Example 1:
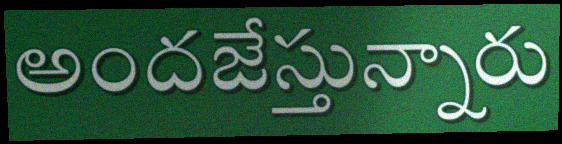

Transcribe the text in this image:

అందజేస్తున్నారు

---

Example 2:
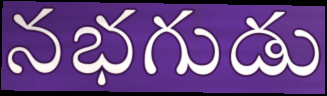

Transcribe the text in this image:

నభగుడు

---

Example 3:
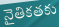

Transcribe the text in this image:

నైతికతకు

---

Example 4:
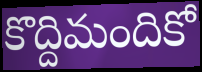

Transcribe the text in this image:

కొద్దిమందికో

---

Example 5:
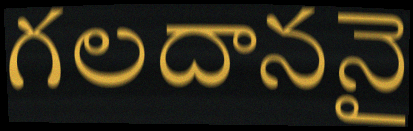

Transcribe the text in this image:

గలదాననై